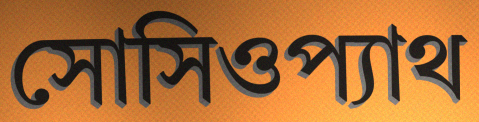
সোসিওপ্যাথ